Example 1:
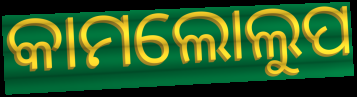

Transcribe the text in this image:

କାମଲୋଲୁପ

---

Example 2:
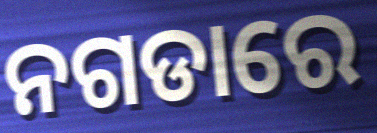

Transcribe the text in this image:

ନଗଡାରେ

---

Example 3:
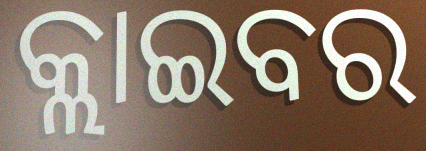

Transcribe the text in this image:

କ୍ଲାଇବର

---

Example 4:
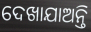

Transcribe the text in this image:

ଦେଖାଯାଅନ୍ତି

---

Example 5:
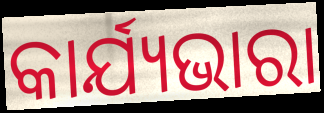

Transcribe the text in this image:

କାର୍ଯ୍ୟଭାରା